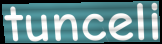
tunceli